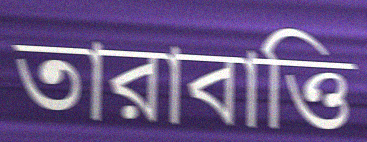
তারাবাত্তি